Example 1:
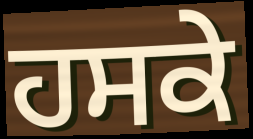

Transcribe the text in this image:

ਹਸਕੇ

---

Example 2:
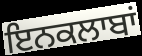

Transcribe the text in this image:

ਇਨਕਲਾਬਾਂ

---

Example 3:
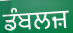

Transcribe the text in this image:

ਡੰਬਲਜ਼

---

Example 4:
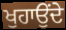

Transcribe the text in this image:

ਖੁਹਾਉਂਦੇ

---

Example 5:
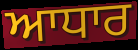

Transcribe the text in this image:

ਆਧਾਰ